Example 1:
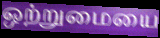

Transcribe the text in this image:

ஒற்றுமையை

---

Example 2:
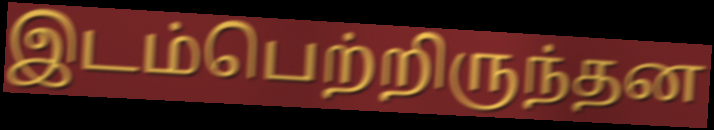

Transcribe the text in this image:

இடம்பெற்றிருந்தன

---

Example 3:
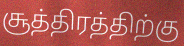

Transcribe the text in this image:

சூத்திரத்திற்கு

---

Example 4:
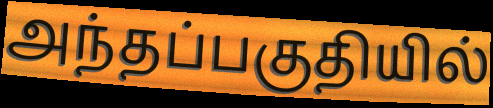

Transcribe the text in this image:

அந்தப்பகுதியில்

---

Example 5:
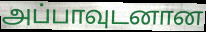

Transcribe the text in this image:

அப்பாவுடனான